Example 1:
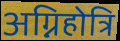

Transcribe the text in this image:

अग्निहोत्रि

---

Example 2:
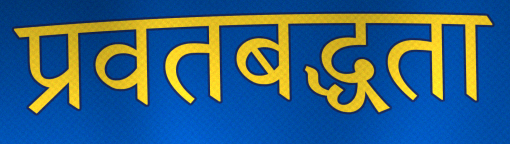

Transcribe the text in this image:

प्रवतबद्धता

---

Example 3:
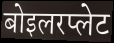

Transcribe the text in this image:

बोइलरप्लेट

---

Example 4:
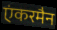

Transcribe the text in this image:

एंकरमैन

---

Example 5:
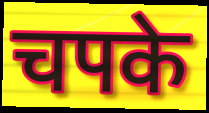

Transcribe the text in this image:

चपके